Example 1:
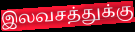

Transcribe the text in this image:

இலவசத்துக்கு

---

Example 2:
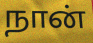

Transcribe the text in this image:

நான்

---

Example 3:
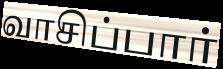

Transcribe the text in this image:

வாசிப்பார்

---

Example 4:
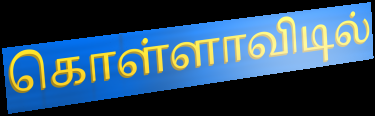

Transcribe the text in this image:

கொள்ளாவிடில்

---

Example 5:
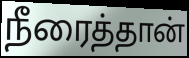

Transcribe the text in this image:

நீரைத்தான்